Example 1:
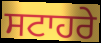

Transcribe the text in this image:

ਸਟਾਹਰੇ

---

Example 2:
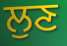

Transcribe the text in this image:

ਲੁਣ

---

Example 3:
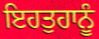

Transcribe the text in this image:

ਇਹਤੁਹਾਨੂੰ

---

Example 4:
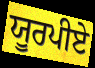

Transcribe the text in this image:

ਯੂਰਪੀਏ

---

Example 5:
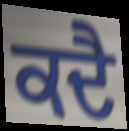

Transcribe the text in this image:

ਕਦੈ